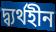
দ্ব্যর্থহীন